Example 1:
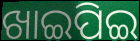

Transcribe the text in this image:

ଖାଇପିଇ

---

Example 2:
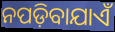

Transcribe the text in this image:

ନପଡ଼ିବାଯାଏଁ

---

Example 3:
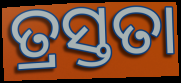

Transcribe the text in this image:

ତ୍ରସ୍ତତା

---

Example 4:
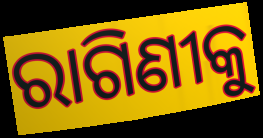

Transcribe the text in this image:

ରାଗିଣୀକୁ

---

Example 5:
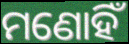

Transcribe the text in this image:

ମଣୋହିଁ